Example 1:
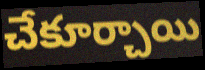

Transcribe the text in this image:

చేకూర్చాయి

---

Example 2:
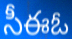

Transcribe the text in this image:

సీఈఓ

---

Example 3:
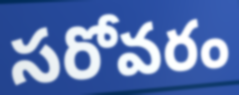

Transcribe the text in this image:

సరోవరం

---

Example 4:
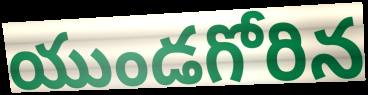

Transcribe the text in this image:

యుండగోరిన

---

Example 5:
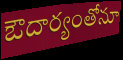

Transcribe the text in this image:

ఔదార్యంతోనూ